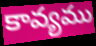
కావ్యము